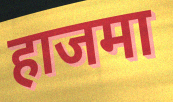
हाजमा